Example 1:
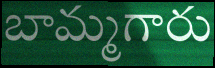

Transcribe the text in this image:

బామ్మగారు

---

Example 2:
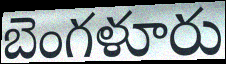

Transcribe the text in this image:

బెంగళూరు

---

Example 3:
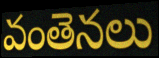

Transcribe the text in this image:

వంతెనలు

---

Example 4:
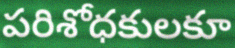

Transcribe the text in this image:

పరిశోధకులకూ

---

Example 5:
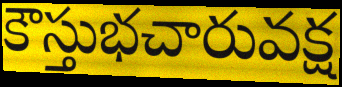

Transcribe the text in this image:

కౌస్తుభచారువక్ష